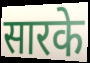
सारके